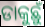
ଡାକୁଛୁଁ